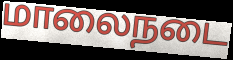
மாலைநடை